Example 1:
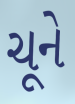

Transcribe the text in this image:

ચૂને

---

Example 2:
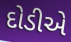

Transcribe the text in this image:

દોડીએ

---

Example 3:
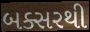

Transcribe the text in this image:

બક્સરથી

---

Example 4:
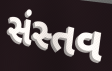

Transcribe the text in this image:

સંસ્તવ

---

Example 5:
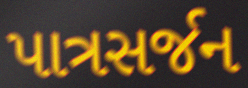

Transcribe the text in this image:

પાત્રસર્જન